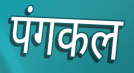
पंगकल